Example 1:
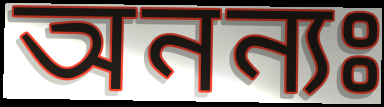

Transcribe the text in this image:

অনন্যঃ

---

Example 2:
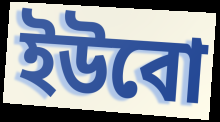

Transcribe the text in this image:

ইউবো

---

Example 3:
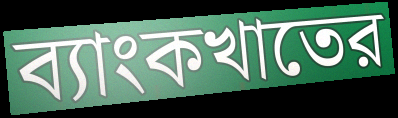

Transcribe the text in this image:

ব্যাংকখাতের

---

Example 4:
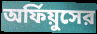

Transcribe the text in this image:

অর্ফিয়ুসের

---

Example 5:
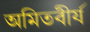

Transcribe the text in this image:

অমিতবীর্য